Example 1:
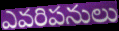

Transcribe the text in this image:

ఎవరిపనులు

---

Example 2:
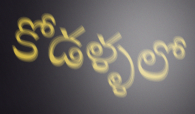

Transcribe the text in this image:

కోడళ్ళలో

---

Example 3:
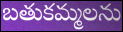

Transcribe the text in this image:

బతుకమ్మలను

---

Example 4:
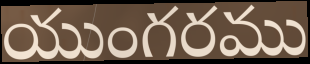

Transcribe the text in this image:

యుంగరము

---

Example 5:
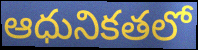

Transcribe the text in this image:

ఆధునికతలో